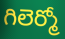
గిలెర్మో